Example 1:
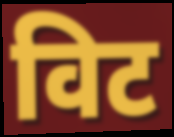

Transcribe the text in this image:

विट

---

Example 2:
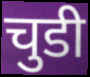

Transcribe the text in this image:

चुडी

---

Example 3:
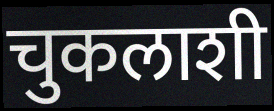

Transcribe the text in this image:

चुकलाशी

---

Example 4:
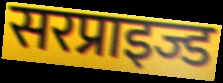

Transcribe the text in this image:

सरप्राइज्ड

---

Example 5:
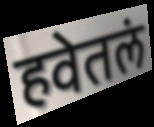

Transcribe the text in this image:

हवेतलं